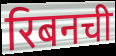
रिबनची